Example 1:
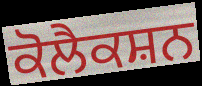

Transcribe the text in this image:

ਕੋਲੈਕਸ਼ਨ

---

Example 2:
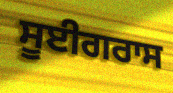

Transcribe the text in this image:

ਸੂਈਗਰਾਸ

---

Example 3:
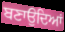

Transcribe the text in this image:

ਬਣਾਉਦਿਆਂ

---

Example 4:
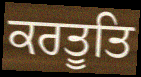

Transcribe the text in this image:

ਕਰਤੂਤਿ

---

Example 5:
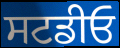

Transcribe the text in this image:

ਸਟਡੀਓ